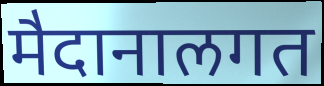
मैदानालगत